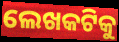
ଲେଖକଟିକୁ